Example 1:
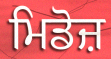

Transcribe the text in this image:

ਮਿਡੋਜ਼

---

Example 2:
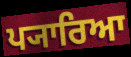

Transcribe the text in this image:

ਪ੍ਯਾਰਿਆ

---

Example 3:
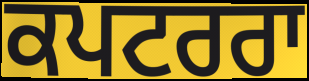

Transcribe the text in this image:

ਕਪਟਰਰਾ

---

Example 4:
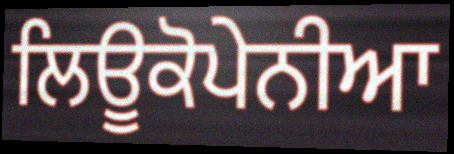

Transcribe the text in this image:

ਲਿਊਕੋਪੇਨੀਆ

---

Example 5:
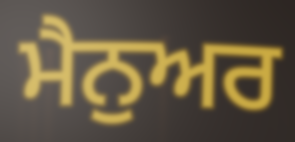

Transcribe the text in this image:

ਮੈਨੁਅਰ